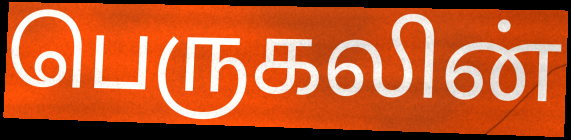
பெருகலின்